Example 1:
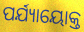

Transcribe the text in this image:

ପର୍ଯ୍ୟାୟୋକ୍ତ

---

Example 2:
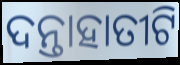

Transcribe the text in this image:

ଦନ୍ତାହାତୀଟି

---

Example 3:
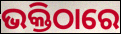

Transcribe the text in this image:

ଭକ୍ତିଠାରେ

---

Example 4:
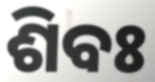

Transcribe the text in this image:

ଶିବଃ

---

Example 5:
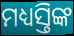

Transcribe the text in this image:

ମଧ୍ୟସ୍ତିଙ୍କ